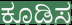
ಕೂಡಿಸ